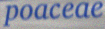
poaceae